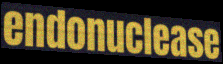
endonuclease